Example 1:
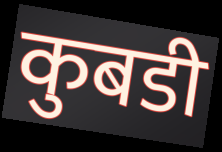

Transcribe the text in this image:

कुबडी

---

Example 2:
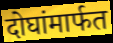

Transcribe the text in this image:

दोघांमार्फत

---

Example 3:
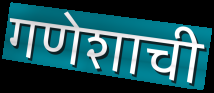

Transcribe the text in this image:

गणेशाची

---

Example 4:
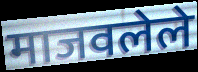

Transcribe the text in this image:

माजवलेले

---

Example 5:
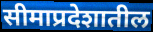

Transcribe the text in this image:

सीमाप्रदेशातील